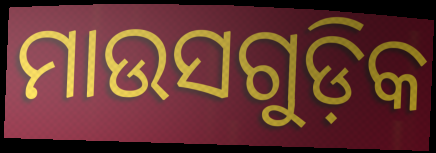
ମାଉସଗୁଡ଼ିକ